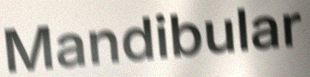
Mandibular